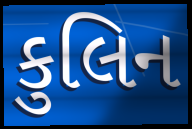
કુલિન